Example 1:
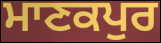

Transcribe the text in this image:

ਮਾਣਕਪੁਰ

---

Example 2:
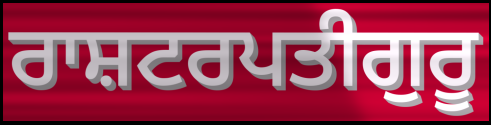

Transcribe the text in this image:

ਰਾਸ਼ਟਰਪਤੀਗੁਰੂ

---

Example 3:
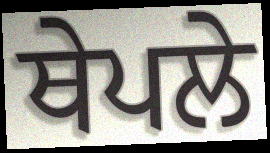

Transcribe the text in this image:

ਥੇਪਲੇ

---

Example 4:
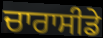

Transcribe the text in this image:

ਚਾਰਾਸੀਡੇ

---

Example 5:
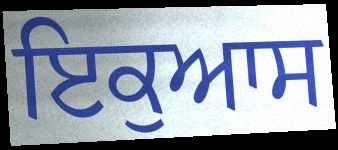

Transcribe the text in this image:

ਇਕੁਆਸ